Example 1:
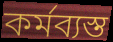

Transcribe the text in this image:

কর্মব্যস্ত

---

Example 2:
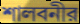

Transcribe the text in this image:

শালবনীর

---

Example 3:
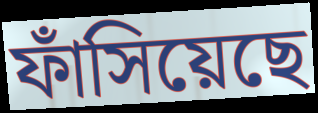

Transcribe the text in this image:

ফাঁসিয়েছে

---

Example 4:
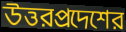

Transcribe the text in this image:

উত্তরপ্রদেশের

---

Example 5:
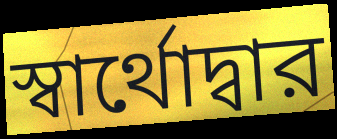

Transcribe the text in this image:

স্বার্থোদ্বার